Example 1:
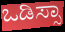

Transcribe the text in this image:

ಒಡಿಸ್ಸಾ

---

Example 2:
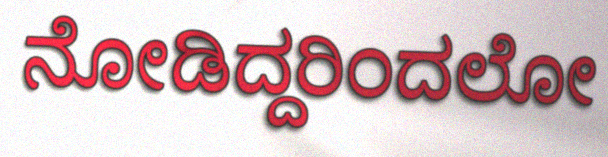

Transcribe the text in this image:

ನೋಡಿದ್ದರಿಂದಲೋ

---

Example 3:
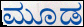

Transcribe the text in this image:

ಮೂಡ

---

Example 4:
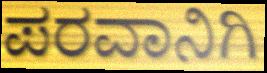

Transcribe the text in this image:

ಪರವಾನಿಗಿ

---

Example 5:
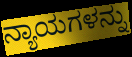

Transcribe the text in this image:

ನ್ಯಾಯಗಳನ್ನು